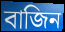
বাজিন